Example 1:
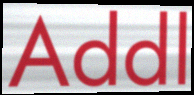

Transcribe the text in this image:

Addl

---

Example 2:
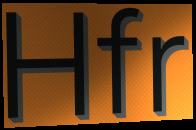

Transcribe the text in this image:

Hfr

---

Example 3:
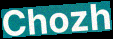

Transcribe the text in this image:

Chozh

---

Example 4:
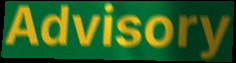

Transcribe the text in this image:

Advisory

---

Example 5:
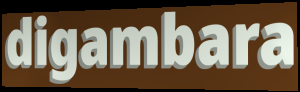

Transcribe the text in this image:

digambara